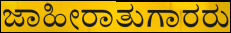
ಜಾಹೀರಾತುಗಾರರು